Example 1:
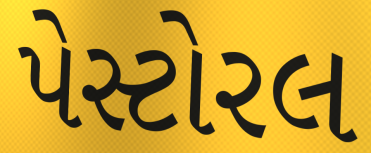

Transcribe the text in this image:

પેસ્ટોરલ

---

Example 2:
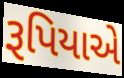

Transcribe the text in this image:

રૂપિયાએ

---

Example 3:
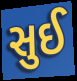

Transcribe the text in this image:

સુઈ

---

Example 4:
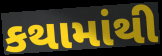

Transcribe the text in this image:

કથામાંથી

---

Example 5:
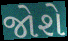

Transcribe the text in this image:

જોશે